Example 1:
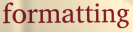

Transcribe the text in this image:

formatting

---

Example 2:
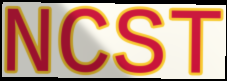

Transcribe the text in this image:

NCST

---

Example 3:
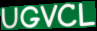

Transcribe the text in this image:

UGVCL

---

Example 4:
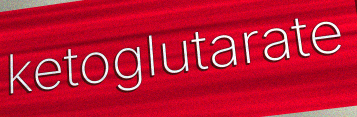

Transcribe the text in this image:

ketoglutarate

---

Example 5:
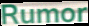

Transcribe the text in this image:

Rumor